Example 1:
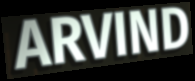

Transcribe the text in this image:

ARVIND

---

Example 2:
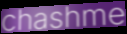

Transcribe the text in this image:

chashme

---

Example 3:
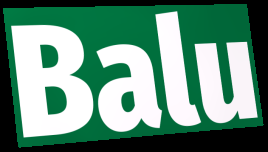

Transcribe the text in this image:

Balu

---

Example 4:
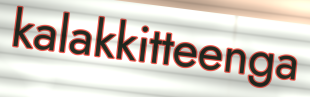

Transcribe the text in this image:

kalakkitteenga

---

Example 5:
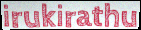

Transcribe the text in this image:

irukirathu